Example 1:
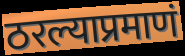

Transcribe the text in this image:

ठरल्याप्रमाणं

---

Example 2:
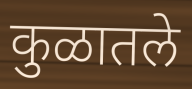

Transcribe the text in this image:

कुळातले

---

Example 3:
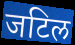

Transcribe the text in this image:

जटिल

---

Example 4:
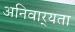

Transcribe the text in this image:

अनिवार्यता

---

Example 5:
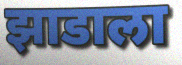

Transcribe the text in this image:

झाडाला